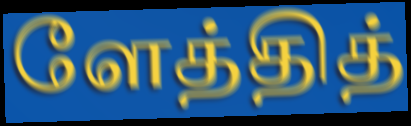
ளேத்தித்